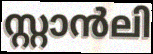
സ്റ്റാൻലി